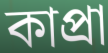
কাপ্রা